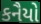
કનૈયો